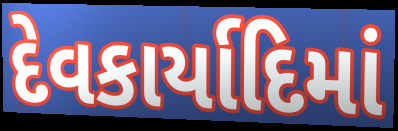
દેવકાર્યાદિમાં